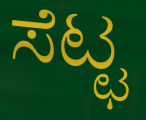
ಸೆಟ್ಟ